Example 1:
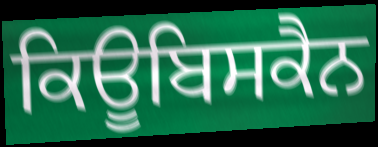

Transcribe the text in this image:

ਕਿਊਬਿਸਕੈਨ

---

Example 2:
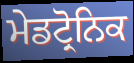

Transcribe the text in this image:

ਮੇਡਟ੍ਰੋਨਿਕ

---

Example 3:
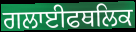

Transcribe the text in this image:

ਗਲਾਈਫਥਲਿਕ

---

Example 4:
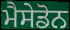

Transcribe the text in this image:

ਮੈਸੇਡੋਨ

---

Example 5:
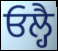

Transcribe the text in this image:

ਓਲ੍ਹ੍ਹੈ